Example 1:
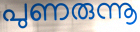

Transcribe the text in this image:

പുണരുന്നൂ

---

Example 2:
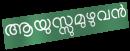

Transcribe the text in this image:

ആയുസ്സുമുഴുവൻ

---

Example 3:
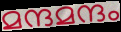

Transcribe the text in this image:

മന്ദമന്ദം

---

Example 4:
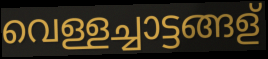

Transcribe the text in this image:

വെള്ളച്ചാട്ടങ്ങള്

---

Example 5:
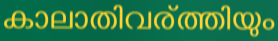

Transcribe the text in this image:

കാലാതിവര്ത്തിയും